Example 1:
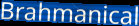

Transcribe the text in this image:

Brahmanical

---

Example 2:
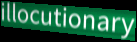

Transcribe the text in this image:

illocutionary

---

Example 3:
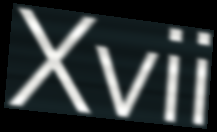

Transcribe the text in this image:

Xvii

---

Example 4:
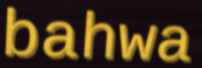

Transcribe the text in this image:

bahwa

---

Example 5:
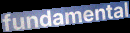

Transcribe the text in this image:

fundamental